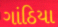
ગાંઠિયા